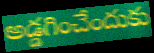
అడ్డగించేందుకు